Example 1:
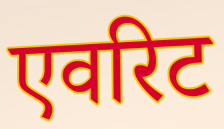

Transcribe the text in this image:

एवरिट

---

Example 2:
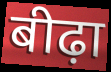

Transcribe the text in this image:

बीढ़ा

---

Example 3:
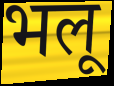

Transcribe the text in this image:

भलू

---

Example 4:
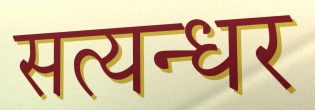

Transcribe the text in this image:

सत्यन्धर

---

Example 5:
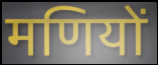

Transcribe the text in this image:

मणियों